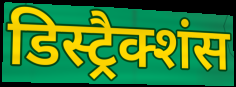
डिस्ट्रैक्शंस